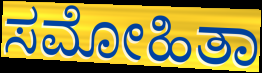
ಸಮೋಹಿತಾ